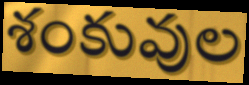
శంకువుల